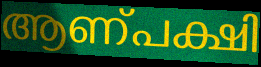
ആണ്പക്ഷി